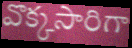
వొక్కసారిగా